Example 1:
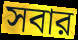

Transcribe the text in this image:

সবার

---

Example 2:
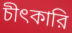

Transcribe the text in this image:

চীৎকারি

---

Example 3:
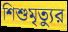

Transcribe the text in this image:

শিশুমৃত্যুর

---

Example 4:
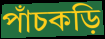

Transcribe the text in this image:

পাঁচকড়ি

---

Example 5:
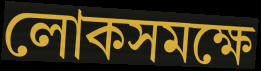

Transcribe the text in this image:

লোকসমক্ষে